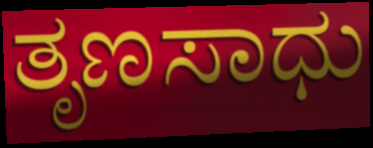
ತೃಣಸಾಧು